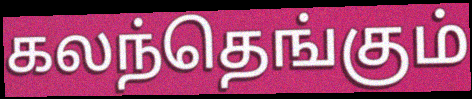
கலந்தெங்கும்